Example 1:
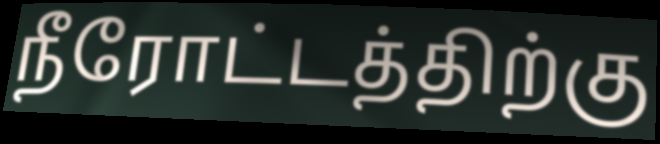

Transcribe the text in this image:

நீரோட்டத்திற்கு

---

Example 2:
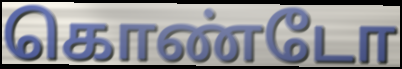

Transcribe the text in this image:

கொண்டோ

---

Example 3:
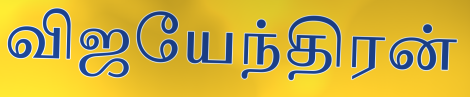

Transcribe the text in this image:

விஜயேந்திரன்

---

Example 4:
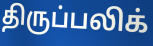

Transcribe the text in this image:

திருப்பலிக்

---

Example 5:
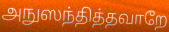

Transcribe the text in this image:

அநுஸந்தித்தவாறே